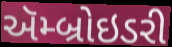
ઍમ્બ્રોઇડરી